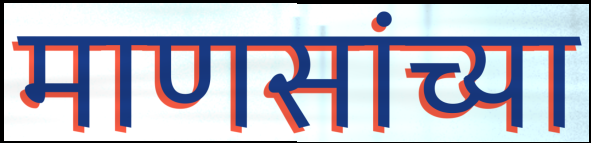
माणसांच्या